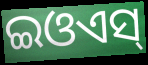
ଇଓଏସ୍